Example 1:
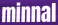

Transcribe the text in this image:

minnal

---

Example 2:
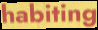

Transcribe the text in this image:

habiting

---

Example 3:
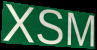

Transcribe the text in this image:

XSM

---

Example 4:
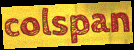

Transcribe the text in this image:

colspan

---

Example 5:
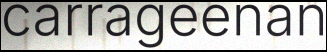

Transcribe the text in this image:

carrageenan